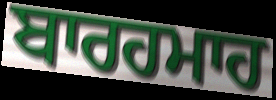
ਬਾਰਹਮਾਹ